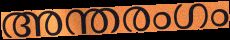
അന്തരംഗം